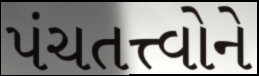
પંચતત્ત્વોને